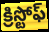
క్రిస్టోఫ్